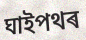
ঘাইপথৰ